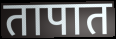
तापात